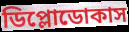
ডিপ্লোডোকাস